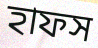
হাফস